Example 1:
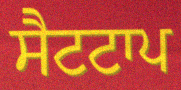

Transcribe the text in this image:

ਸੈਟਟਾਪ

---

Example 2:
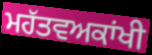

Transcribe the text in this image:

ਮਹੱਤਵਅਕਾਂਖੀ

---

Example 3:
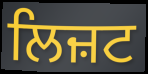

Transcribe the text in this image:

ਲਿਜ਼ਟ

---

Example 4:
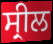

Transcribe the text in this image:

ਸ੍ਰੀਲ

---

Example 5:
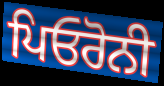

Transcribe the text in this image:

ਪਿਓਰੋਨੀ